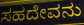
ಸಹದೇವನು